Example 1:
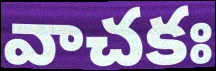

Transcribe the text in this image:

వాచకః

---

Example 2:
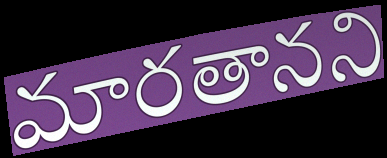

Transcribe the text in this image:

మారతానని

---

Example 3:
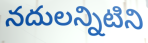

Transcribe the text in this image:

నదులన్నిటిని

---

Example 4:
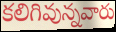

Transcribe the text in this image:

కలిగివున్నవారు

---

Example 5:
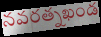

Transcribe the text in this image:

నవరత్నఖండ